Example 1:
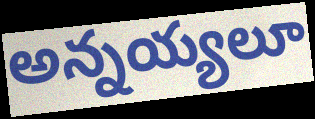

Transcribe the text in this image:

అన్నయ్యలూ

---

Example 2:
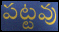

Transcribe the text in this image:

పట్టవు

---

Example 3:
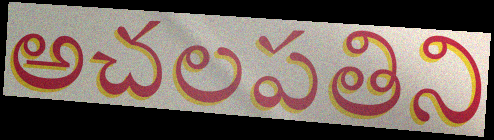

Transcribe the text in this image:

అచలపతిని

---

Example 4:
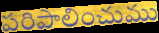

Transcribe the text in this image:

పరిపాలించుము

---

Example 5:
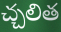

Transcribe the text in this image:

చ్చలిత